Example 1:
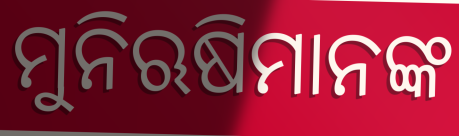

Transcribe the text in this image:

ମୁନିଋଷିମାନଙ୍କ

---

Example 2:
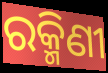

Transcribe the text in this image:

ରକ୍ମିଣୀ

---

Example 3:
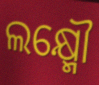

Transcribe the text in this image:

ଲକ୍ଷ୍ମୌ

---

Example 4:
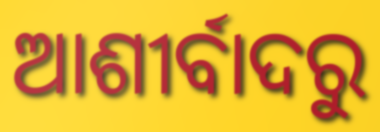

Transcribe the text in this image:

ଆଶୀର୍ବାଦରୁ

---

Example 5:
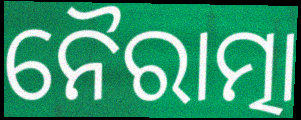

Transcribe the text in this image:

ନୈରାତ୍ମା